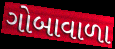
ગોબાવાળા